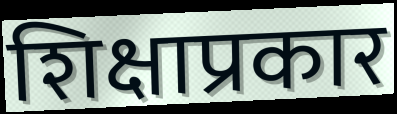
शिक्षाप्रकार